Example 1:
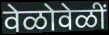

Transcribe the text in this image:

वेळोवेळीं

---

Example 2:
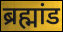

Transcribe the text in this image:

ब्रह्मांड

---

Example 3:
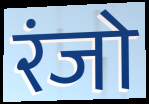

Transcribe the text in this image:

रंजो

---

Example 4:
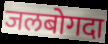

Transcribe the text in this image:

जलबोगदा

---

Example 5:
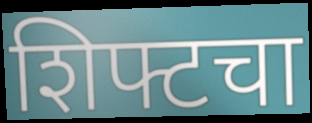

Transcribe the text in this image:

शिफ्टचा